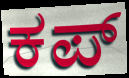
ಕಪ್